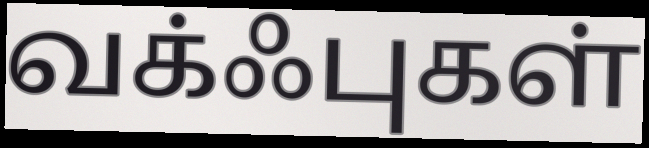
வக்ஃபுகள்